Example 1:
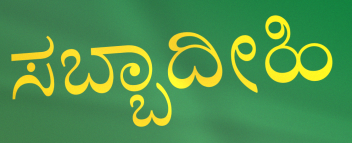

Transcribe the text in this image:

ಸಬ್ಬಾದೀಹಿ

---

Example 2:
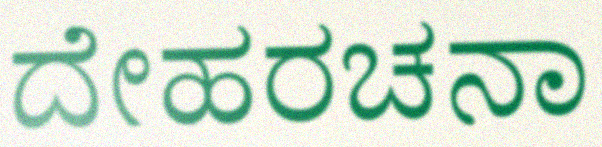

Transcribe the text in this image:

ದೇಹರಚನಾ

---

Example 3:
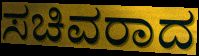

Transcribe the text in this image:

ಸಚಿವರಾದ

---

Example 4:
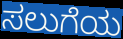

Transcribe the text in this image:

ಸಲುಗೆಯ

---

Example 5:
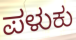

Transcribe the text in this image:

ಪಳುಕು